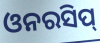
ଓନରସିପ୍